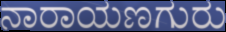
ನಾರಾಯಣಗುರು